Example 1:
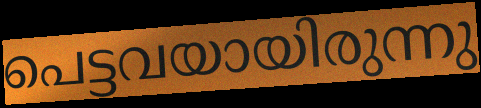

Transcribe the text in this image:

പെട്ടവയായിരുന്നു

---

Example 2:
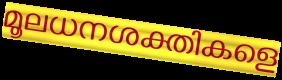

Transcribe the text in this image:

മൂലധനശക്തികളെ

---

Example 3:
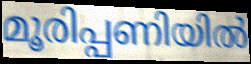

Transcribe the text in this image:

മൂരിപ്പണിയിൽ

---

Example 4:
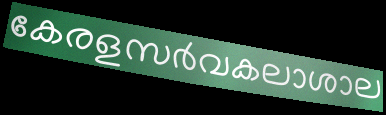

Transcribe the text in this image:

കേരളസർവകലാശാല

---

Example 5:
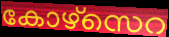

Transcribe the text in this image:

കോഴ്സെറ